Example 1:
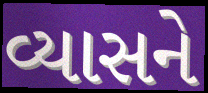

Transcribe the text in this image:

વ્યાસને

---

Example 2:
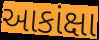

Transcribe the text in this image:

આકાંક્ષા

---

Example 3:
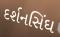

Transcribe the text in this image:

દર્શનસિંઘ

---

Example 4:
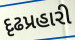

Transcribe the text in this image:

દૃઢપ્રહારી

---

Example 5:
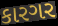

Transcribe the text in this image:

કારગર